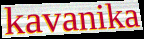
kavanika